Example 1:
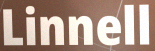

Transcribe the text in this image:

Linnell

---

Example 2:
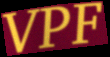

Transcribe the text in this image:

VPF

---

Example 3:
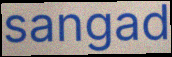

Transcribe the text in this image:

sangad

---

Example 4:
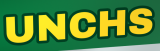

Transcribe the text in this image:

UNCHS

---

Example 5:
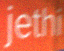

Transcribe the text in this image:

jethi